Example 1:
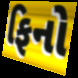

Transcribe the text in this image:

ફિનો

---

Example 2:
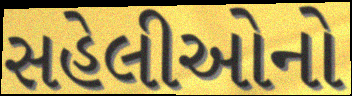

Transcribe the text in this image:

સહેલીઓનો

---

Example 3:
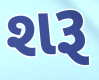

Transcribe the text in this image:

શરૂ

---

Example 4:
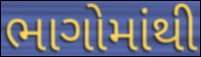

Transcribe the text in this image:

ભાગોમાંથી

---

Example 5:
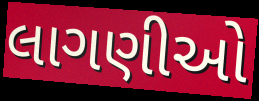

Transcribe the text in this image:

લાગણીઓ